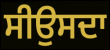
ਸੀਉਸਦਾ